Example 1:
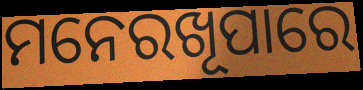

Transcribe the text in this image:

ମନେରଖୂପାରେ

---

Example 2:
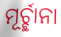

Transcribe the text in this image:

ମୂର୍ଚ୍ଛାନା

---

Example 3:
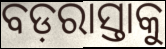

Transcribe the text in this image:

ବଡ଼ରାସ୍ତାକୁ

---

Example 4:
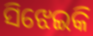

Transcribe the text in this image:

ସିଝେଇକି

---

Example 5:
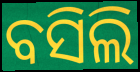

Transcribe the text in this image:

ବସିଲି